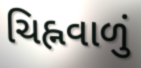
ચિહ્નવાળું